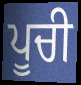
ਪੂਚੀ